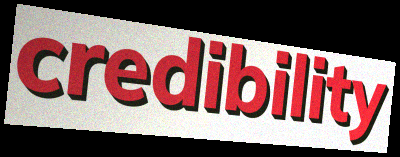
credibility